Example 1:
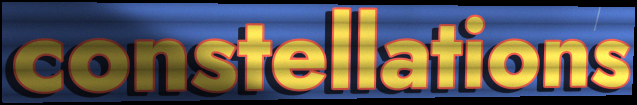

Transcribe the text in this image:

constellations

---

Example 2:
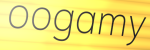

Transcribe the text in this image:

oogamy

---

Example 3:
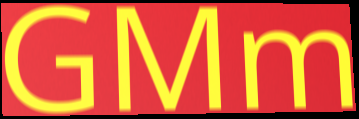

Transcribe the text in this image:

GMm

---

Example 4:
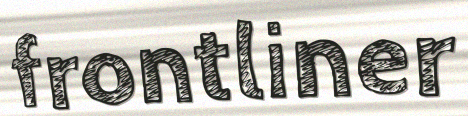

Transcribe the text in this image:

frontliner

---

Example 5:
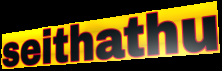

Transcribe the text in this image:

seithathu